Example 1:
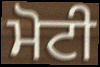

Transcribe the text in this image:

ਮੋਟੀ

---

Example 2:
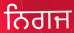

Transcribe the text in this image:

ਨਿਗਜ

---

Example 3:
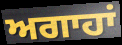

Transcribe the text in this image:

ਅਗਾਹਾਂ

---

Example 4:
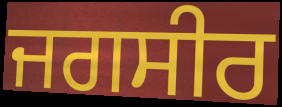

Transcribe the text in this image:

ਜਗਸੀਰ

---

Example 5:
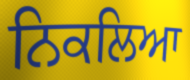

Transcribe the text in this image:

ਨਿਕਲਿਆ